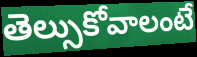
తెల్సుకోవాలంటే